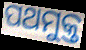
ପଥମୁକ୍ତ